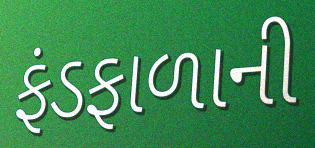
ફંડફાળાની